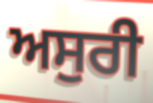
ਅਸੁਰੀ